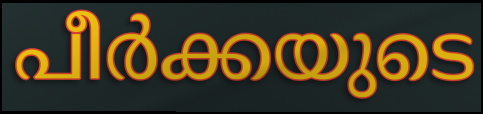
പീർക്കയുടെ